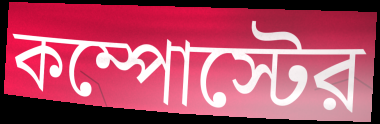
কম্পোস্টের